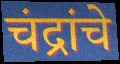
चंद्रांचे